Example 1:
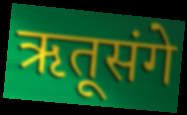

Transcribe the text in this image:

ऋतूसंगे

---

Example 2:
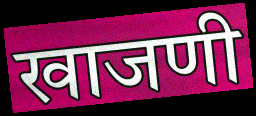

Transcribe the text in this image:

खाजणी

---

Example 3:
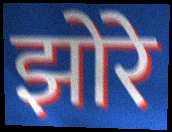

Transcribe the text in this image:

झोरे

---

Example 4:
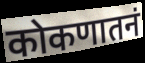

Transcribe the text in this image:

कोकणातनं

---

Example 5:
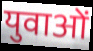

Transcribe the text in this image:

युवाओं